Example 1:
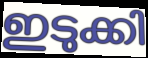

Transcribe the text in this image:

ഇടുക്കി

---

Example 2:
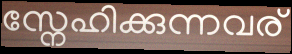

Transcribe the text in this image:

സ്നേഹിക്കുന്നവര്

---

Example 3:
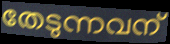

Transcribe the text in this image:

തേടുന്നവന്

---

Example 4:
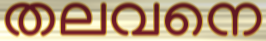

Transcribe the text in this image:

തലവനെ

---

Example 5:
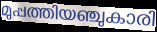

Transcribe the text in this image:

മുപ്പത്തിയഞ്ചുകാരി